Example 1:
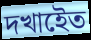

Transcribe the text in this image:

দখাইেত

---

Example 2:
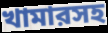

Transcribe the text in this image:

খামারসহ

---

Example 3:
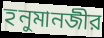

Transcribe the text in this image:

হনুমানজীর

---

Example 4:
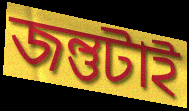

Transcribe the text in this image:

জন্তুটাই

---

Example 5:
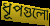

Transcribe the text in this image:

ধূপগুলো